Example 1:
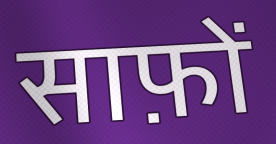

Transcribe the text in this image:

साफ़ों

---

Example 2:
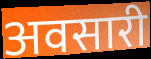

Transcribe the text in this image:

अवसारी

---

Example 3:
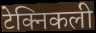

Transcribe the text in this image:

टेक्निकली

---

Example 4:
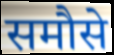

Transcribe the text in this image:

समौसे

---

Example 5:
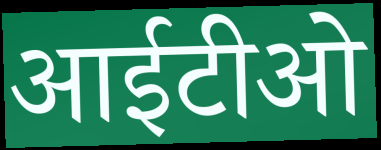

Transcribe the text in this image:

आईटीओ